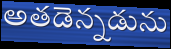
అతడెన్నడును